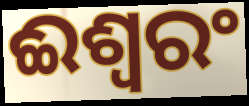
ଈଶ୍ଵରଂ